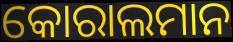
କୋରାଲମାନ